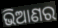
ଭିଆଣର